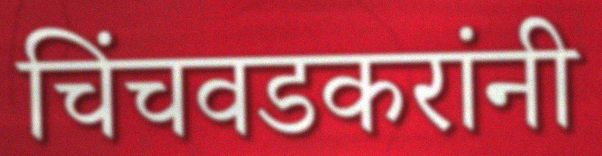
चिंचवडकरांनी